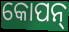
କୋପନ୍